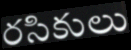
రసికులు